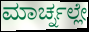
ಮಾರ್ಚ್ನಲ್ಲೇ